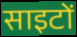
साइटों